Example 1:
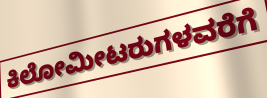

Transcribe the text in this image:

ಕಿಲೋಮೀಟರುಗಳವರೆಗೆ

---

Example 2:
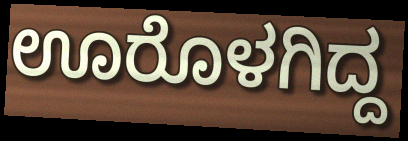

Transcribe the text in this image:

ಊರೊಳಗಿದ್ದ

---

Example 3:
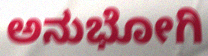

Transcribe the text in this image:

ಅನುಭೋಗಿ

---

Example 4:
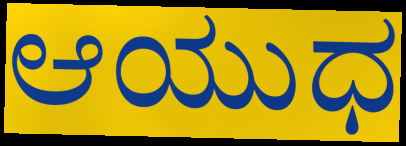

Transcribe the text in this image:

ಆಯುಧ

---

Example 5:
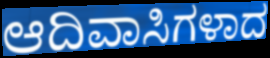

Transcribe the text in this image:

ಆದಿವಾಸಿಗಳಾದ